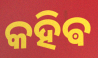
କହିଵ